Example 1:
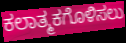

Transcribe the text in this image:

ಕಲಾತ್ಮಕಗೊಳಿಸಲು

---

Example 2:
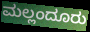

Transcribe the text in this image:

ಮಲ್ಲಂದೂರು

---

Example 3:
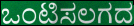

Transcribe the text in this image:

ಒಂಟಿಸಲಗದ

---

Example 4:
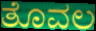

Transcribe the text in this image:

ತೊವಲ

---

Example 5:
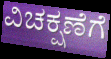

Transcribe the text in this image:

ವಿಚಕ್ಷಣೆಗೆ